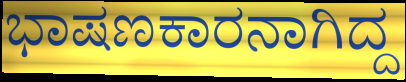
ಭಾಷಣಕಾರನಾಗಿದ್ದ